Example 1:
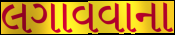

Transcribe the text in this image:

લગાવવાના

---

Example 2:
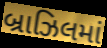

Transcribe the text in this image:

બ્રાઝિલમાં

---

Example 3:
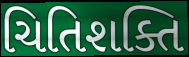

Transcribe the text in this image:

ચિતિશક્તિ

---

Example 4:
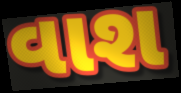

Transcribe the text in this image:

વાશ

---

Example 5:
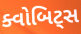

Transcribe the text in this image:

ક્વોબિટ્સ